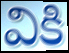
వికి